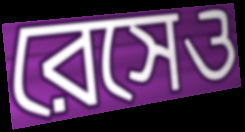
রেসেও